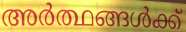
അർത്ഥങ്ങൾക്ക്